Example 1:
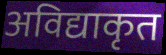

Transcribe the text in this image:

अविद्याकृत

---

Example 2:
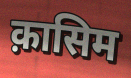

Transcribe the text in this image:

क़ासिम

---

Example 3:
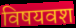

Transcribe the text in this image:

विषयवश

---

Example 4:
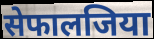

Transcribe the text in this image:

सेफालजिया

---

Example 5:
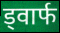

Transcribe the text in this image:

ड्वार्फ